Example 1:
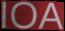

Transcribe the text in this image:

IOA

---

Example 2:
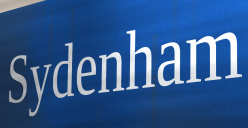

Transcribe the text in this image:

Sydenham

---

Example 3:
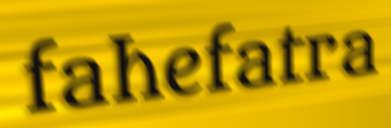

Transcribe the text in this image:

fahefatra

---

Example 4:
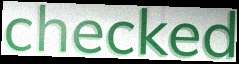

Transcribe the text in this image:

checked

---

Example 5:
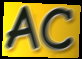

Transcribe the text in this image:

AC